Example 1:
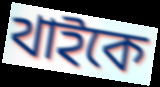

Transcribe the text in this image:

থাইকে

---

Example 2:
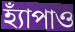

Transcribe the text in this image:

হ্যাঁপাও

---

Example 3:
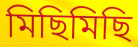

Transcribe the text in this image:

মিছিমিছি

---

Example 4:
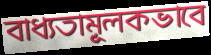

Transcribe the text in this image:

বাধ্যতামূলকভাবে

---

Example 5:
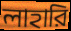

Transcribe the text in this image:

লাহারি